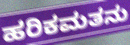
ಹರಿಕಮತನು